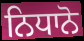
ਨਿਧਾਨੋ